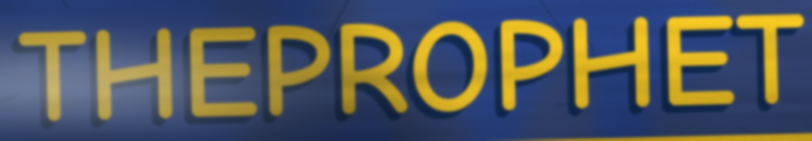
THEPROPHET